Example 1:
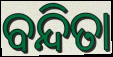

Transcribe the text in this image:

ବନ୍ଦିତା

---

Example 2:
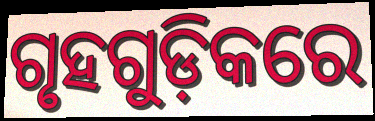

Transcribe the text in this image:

ଗୃହଗୁଡ଼ିକରେ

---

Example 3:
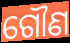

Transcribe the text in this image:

ଗୌଣ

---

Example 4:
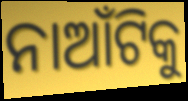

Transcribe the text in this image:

ନାଆଁଟିକୁ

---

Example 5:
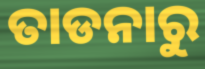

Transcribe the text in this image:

ତାଡନାରୁ